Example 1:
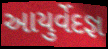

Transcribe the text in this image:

આયુર્વેદજ્ઞ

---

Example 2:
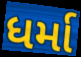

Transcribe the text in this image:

ધર્મા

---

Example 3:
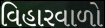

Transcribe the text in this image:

વિહારવાળો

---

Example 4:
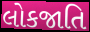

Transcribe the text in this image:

લોકજાતિ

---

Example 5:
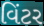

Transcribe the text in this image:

વિંટર